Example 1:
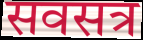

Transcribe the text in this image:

सवसत्र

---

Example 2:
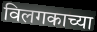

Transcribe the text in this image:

विलगकाच्या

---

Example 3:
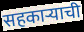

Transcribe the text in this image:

सहकाऱ्याची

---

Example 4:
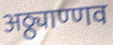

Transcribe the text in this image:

अठ्ठ्याण्णव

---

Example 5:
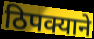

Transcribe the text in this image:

ठिपक्याने